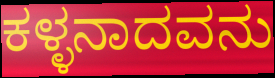
ಕಳ್ಳನಾದವನು